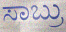
ಸಾಬ್ರು